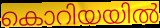
കൊറിയയിൽ